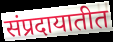
संप्रदायातीत